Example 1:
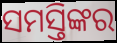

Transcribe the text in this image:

ସମସ୍ତିଙ୍କର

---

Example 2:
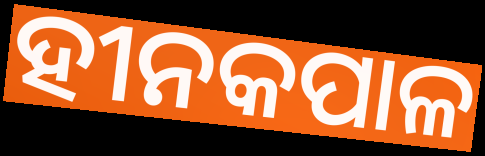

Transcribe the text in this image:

ହୀନକପାଳ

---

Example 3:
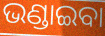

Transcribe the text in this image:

ଭଣ୍ଡାଇବା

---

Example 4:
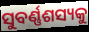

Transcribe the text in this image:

ସୁବର୍ଣ୍ଣଶସ୍ୟକୁ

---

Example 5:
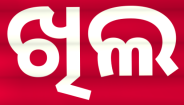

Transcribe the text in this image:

ଖିଲ